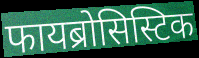
फायब्रोसिस्टिक